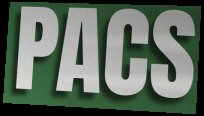
PACS